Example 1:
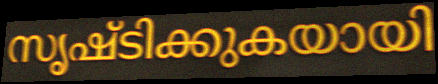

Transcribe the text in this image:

സൃഷ്ടിക്കുകയായി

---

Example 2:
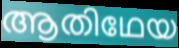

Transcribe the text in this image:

ആതിഥേയ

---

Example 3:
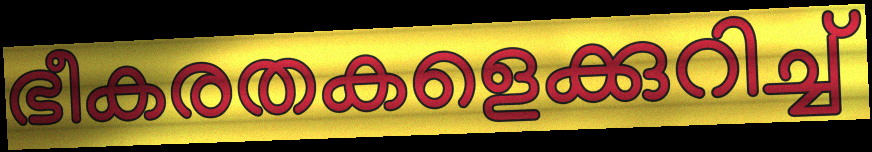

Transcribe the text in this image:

ഭീകരതകളെക്കുറിച്ച്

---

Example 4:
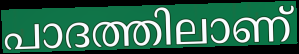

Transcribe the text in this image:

പാദത്തിലാണ്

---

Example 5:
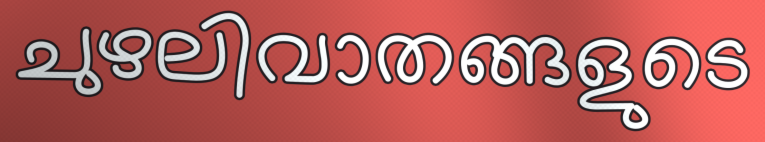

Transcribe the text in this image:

ചുഴലിവാതങ്ങളുടെ